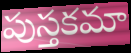
పుస్తకమా